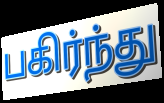
பகிர்ந்து